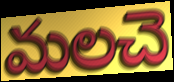
మలచె